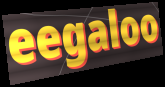
eegaloo